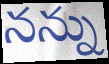
నన్ను